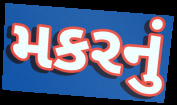
મકરનું